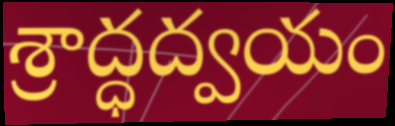
శ్రాద్ధద్వయం